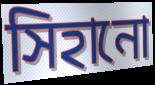
সিহানো